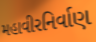
મહાવીરનિર્વાણ